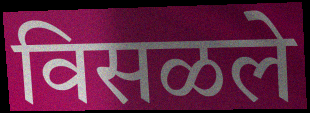
विसळले